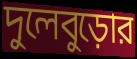
দুলেবুড়োর